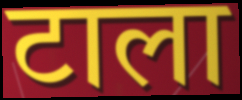
टाला